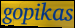
gopikas